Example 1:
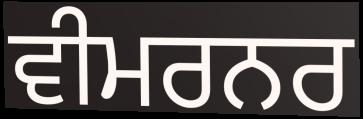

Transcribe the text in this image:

ਵੀਮਰਨਰ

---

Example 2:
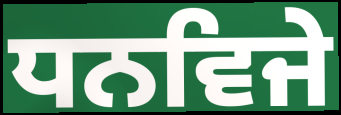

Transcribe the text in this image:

ਧਨਵਿਜੇ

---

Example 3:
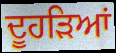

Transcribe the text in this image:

ਦੂਹੜਿਆਂ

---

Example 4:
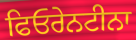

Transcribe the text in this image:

ਫਿਓਰੇਨਟੀਨਾ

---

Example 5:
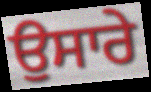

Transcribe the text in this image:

ਉਸਾਰੇ